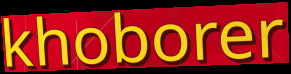
khoborer